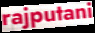
rajputani